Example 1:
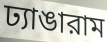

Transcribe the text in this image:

ঢ্যাঙারাম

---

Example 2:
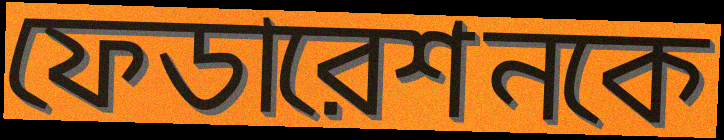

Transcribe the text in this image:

ফেডারেশনকে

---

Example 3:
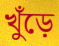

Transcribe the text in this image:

খুঁড়ে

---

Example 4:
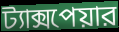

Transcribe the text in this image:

ট্যাক্সপেয়ার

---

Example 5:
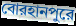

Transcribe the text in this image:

বোরহানপুরে